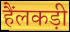
हैंलकड़ी